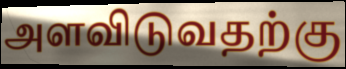
அளவிடுவதற்கு